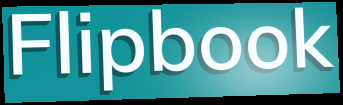
Flipbook